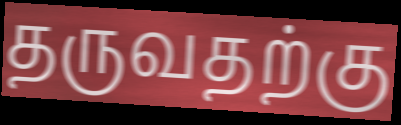
தருவதற்கு